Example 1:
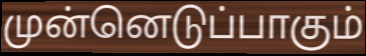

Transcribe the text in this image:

முன்னெடுப்பாகும்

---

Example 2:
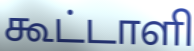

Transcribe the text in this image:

கூட்டாளி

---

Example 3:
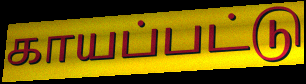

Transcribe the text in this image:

காயப்பட்டு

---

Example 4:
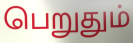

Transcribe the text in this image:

பெறுதும்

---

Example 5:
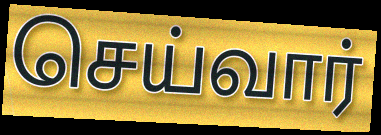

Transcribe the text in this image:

செய்வார்